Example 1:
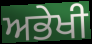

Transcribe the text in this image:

ਅਭੇਖੀ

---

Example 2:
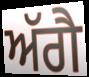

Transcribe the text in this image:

ਅੱਗੈ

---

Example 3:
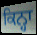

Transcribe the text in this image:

ਕਿਨ੍ਹਾ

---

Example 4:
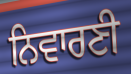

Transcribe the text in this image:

ਨਿਵਾਰਣੀ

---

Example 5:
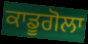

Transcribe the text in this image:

ਕਾਡੂਗੋਲਾ